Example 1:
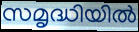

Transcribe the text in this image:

സമൃദ്ധിയിൽ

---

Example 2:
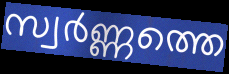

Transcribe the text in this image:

സ്വർണ്ണത്തെ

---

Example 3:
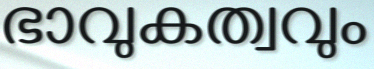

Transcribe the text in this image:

ഭാവുകത്വവും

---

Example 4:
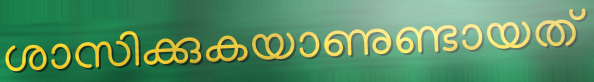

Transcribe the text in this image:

ശാസിക്കുകയാണുണ്ടായത്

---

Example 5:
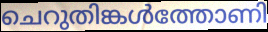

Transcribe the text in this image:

ചെറുതിങ്കൾത്തോണി